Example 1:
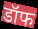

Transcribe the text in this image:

डॉफ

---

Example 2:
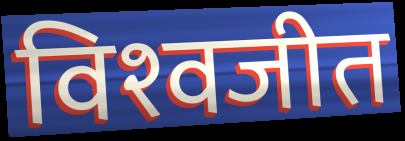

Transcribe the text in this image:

विश्वजीत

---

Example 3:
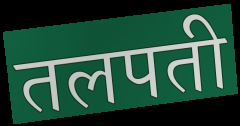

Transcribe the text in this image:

तलपती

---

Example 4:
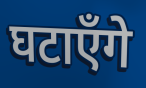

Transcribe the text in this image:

घटाएँगे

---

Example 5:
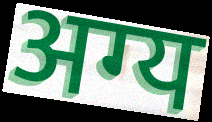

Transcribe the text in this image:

अग्य